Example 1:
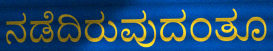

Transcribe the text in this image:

ನಡೆದಿರುವುದಂತೂ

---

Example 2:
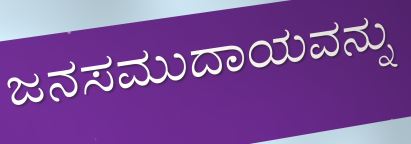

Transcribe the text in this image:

ಜನಸಮುದಾಯವನ್ನು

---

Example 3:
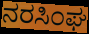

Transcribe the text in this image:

ನರಸಿಂಘ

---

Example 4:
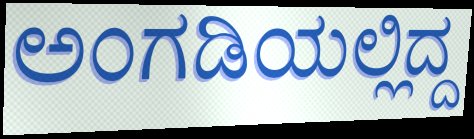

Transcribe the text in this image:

ಅಂಗಡಿಯಲ್ಲಿದ್ದ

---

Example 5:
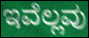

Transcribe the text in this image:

ಇವೆಲ್ಲವು